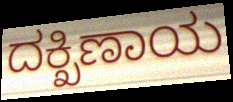
ದಕ್ಖಿಣಾಯ